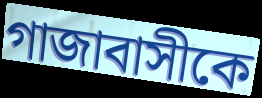
গাজাবাসীকে